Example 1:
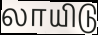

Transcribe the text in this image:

லாயிடு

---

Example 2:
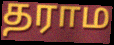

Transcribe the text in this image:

தராம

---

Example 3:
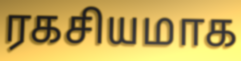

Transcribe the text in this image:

ரகசியமாக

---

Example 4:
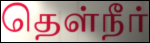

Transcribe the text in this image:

தெள்நீர்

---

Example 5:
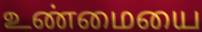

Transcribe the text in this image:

உண்மையை